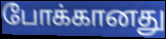
போக்கானது